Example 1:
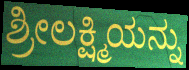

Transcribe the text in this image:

ಶ್ರೀಲಕ್ಷ್ಮಿಯನ್ನು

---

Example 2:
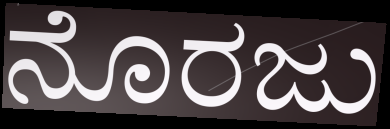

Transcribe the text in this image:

ನೊರಜು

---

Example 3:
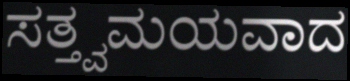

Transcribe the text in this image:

ಸತ್ತ್ವಮಯವಾದ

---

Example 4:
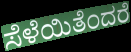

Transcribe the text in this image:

ಸೆಳೆಯಿತೆಂದರೆ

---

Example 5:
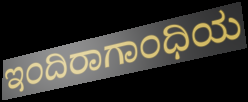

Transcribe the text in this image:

ಇಂದಿರಾಗಾಂಧಿಯ